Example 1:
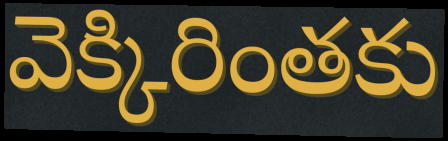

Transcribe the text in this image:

వెక్కిరింతకు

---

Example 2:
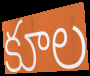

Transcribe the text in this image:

కూల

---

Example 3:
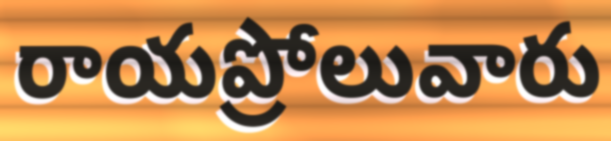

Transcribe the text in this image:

రాయప్రోలువారు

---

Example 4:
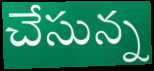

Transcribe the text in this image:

చేసున్న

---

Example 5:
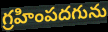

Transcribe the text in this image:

గ్రహింపదగును